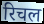
रिचल